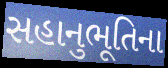
સહાનુભૂતિના